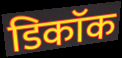
डिकॉक